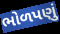
ભોળપણું